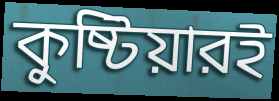
কুষ্টিয়ারই